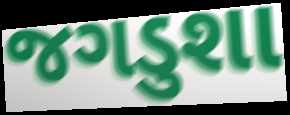
જગડુશા